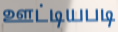
ஊட்டியபடி